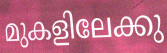
മുകളിലേക്കു